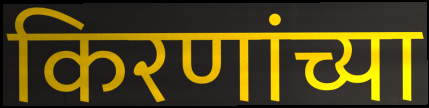
किरणांच्या